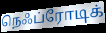
நெஃப்ரோடிக்